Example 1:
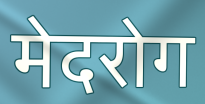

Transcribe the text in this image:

मेदरोग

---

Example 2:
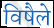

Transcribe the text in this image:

विषैले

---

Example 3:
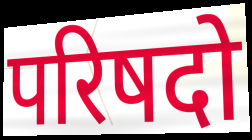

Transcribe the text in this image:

परिषदो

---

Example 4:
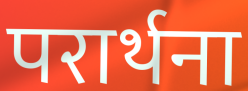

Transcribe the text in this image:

परार्थना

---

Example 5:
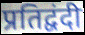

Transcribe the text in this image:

प्रतिद्वंदी